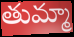
తుమ్మా